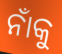
ନାଁକୁ